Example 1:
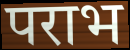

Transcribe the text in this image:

पराभ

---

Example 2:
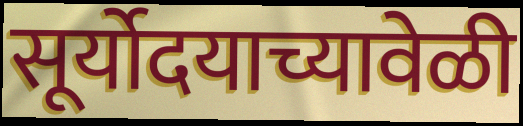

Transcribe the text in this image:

सूर्योदयाच्यावेळी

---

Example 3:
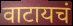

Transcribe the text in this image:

वाटायचं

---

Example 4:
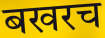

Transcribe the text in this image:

बखरच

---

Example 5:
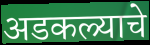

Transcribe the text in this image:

अडकल्याचे